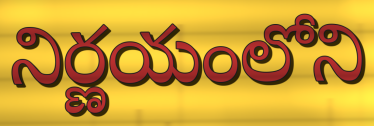
నిర్ణయంలోని